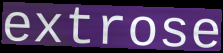
extrose